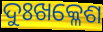
ଦୁଃଖକ୍ଳେଶ